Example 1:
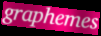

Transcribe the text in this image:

graphemes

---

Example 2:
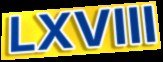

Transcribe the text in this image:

LXVIII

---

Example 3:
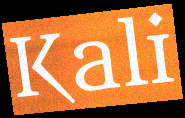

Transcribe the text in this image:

Kali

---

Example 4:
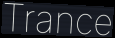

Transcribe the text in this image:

Trance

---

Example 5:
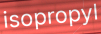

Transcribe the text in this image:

isopropyl